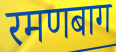
रमणबाग